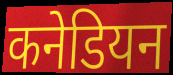
कनेडियन